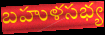
బహుళసభ్య